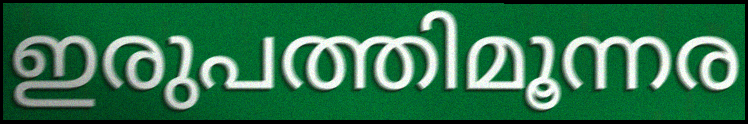
ഇരുപത്തിമൂന്നര